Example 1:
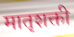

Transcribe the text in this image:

मातृशक्ती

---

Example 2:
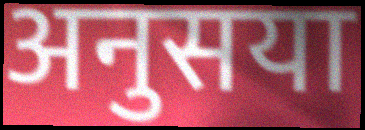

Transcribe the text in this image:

अनुसया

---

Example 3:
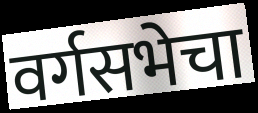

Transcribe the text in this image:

वर्गसभेचा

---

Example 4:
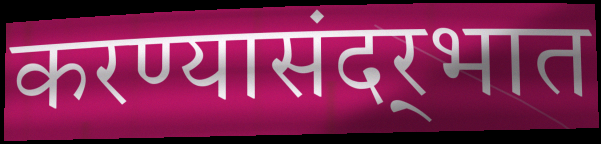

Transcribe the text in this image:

करण्यासंदर्भात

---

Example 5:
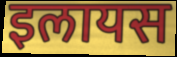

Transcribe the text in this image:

इलायस